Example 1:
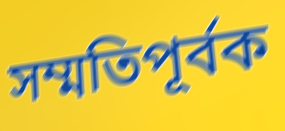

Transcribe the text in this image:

সম্মতিপূর্বক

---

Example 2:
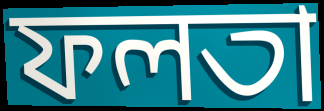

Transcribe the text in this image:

ফলতা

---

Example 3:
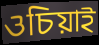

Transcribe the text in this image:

ওচিয়াই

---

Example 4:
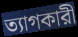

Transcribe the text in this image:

ত্যাগকারী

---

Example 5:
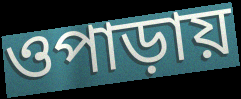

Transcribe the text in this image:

ওপাড়ায়